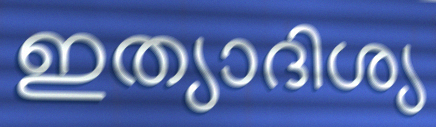
ഇത്യാദിശ്യ